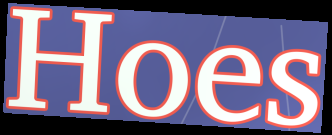
Hoes